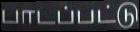
பாடப்பட்டு